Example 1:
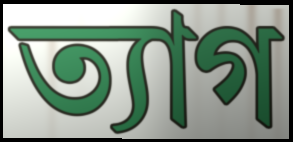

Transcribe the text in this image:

ত্যাগ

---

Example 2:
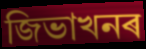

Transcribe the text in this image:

জিভাখনৰ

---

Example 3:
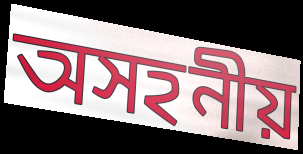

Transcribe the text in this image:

অসহনীয়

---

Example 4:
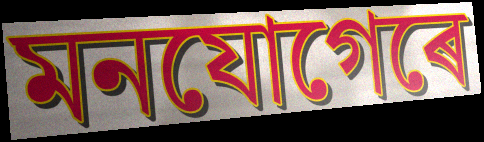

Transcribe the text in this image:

মনযোগেৰে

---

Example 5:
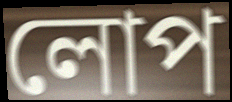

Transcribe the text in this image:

লোপ